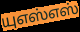
யுஎஸ்எஸ்